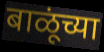
बाळूंच्या